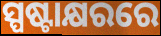
ସ୍ପଷ୍ଟାକ୍ଷରରେ